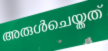
അരുൾചെയ്തത്